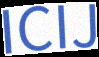
ICIJ